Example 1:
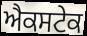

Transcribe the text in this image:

ਐਕਸਟੇਕ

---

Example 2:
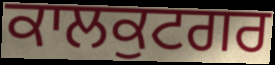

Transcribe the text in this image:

ਕਾਲਕੁਟਗਰ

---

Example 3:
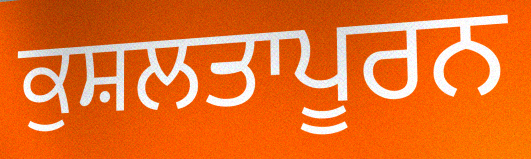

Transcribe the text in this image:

ਕੁਸ਼ਲਤਾਪੂਰਨ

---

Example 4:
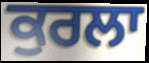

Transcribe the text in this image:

ਕੁਰਲਾ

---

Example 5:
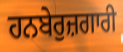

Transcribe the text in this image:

ਹਨਬੇਰੁਜ਼ਗਾਰੀ